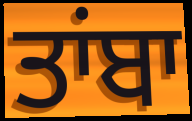
ਤਾਂਬਾ